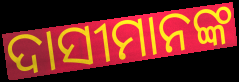
ଦାସୀମାନଙ୍କ